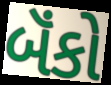
બૅંકો